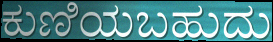
ಕುಣಿಯಬಹುದು